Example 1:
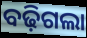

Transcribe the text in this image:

ବଢ଼ିଗଲା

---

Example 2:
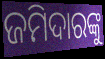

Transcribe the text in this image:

ଜମିଦାରଙ୍କୁ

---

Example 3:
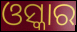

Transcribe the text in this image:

ଓସ୍କାର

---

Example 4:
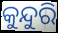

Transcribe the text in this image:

କୁନ୍ଦୁରି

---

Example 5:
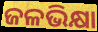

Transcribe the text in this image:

ଜଳଭିକ୍ଷା